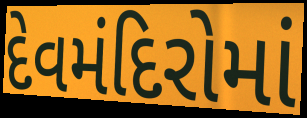
દેવમંદિરોમાં